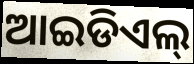
ଆଇଡିଏଲ୍